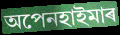
অপেনহাইমাৰ